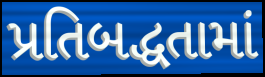
પ્રતિબદ્ધતામાં